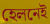
হেলনেই